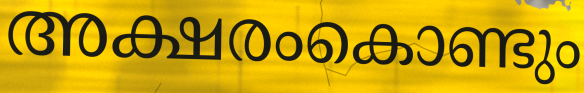
അക്ഷരംകൊണ്ടും